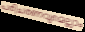
പരിചരണവുമെല്ലാം